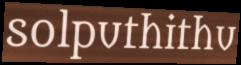
solputhithu